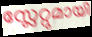
സ്ലേറ്റുമായി